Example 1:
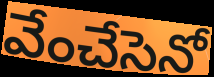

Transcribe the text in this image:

వేంచేసెనో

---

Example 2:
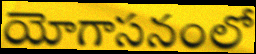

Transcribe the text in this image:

యోగాసనంలో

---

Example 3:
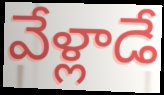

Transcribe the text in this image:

వేళ్లాడే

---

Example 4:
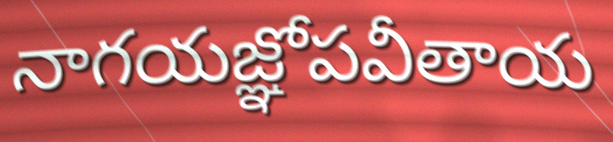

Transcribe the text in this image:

నాగయజ్ఞోపవీతాయ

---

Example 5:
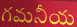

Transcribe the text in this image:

గమనీయ